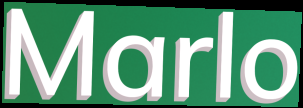
Marlo